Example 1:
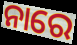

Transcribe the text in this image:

ନାରେ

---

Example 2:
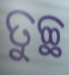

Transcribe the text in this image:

ତୁଚ୍ଛ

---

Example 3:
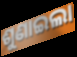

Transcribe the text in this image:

ଶୁଣାଇଲା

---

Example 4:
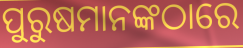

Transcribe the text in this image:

ପୁରୁଷମାନଙ୍କଠାରେ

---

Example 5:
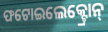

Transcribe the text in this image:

ଫଟୋଇଲେକ୍ଟ୍ରୋନ୍